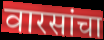
वारसांचा